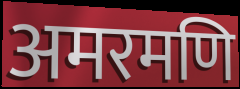
अमरमणि